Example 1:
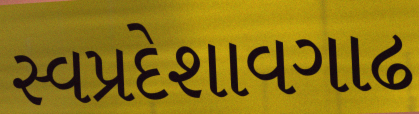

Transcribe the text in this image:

સ્વપ્રદેશાવગાઢ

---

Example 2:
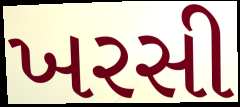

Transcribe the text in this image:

ખરસી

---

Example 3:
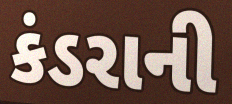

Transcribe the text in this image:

કંડરાની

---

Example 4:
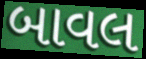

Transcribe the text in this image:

બાવલ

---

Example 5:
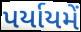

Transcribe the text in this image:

પર્યાયમેં